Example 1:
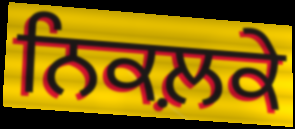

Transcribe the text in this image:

ਨਿਕਲ਼ਕੇ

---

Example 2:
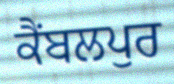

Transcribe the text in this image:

ਕੈਂਬਲਪੁਰ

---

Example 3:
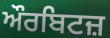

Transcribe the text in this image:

ਔਰਬਿਟਜ਼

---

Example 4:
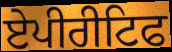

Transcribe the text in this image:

ਏਪੀਰੀਟਿਫ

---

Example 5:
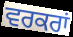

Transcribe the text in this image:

ਵਰਕਰਾਂ